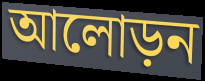
আলোড়ন